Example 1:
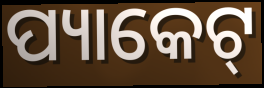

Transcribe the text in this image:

ପ୍ୟାକେଟ୍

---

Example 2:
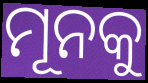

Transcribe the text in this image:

ମୂନକୁ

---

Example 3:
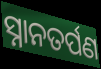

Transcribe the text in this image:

ସ୍ନାନତର୍ପଣ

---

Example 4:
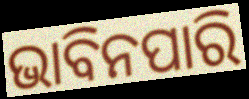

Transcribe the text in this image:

ଭାବିନପାରି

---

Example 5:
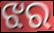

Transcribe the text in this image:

ଝର